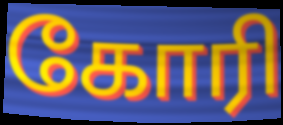
கோரி